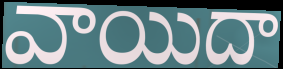
వాయిదా